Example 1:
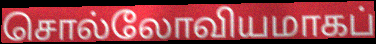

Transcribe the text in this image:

சொல்லோவியமாகப்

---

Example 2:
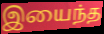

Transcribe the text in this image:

இயைந்த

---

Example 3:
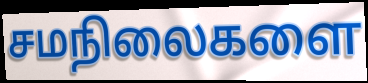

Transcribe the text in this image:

சமநிலைகளை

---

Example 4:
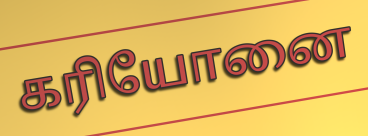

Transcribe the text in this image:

கரியோனை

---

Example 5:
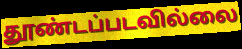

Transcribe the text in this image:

தூண்டப்படவில்லை